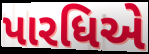
પારધિએ